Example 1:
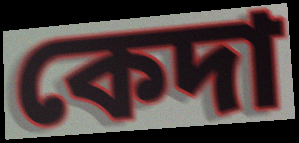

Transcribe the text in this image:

কেদা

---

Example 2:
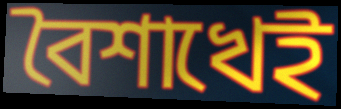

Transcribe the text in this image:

বৈশাখেই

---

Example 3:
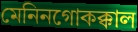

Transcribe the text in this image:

মেনিনগোকক্কাল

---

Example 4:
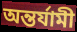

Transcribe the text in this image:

অন্তর্যামী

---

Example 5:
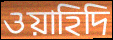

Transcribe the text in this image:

ওয়াহিদি